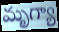
మృగ్యా